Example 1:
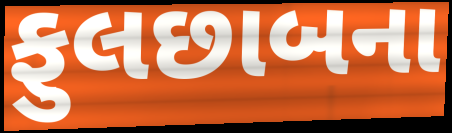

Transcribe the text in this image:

ફુલછાબના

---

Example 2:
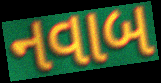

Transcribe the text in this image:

નવાબ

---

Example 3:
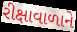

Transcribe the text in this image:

રીક્ષાવાળાને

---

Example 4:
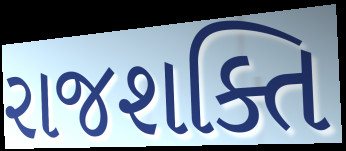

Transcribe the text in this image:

રાજશક્તિ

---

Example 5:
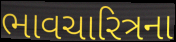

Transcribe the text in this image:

ભાવચારિત્રના